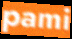
pami